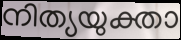
നിത്യയുക്താ